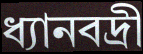
ধ্যানবদ্রী